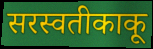
सरस्वतीकाकू